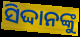
ସିଦ୍ଦାନଙ୍କୁ